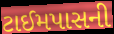
ટાઈમપાસની